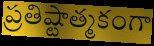
ప్రతిష్టాత్మకంగా